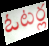
ఓటర్ల